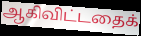
ஆகிவிட்டதைக்